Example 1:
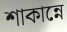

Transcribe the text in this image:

শাকান্নে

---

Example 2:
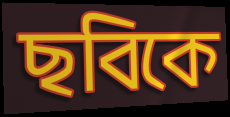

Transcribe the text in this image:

ছবিকে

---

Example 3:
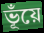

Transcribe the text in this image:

ভূঁয়ে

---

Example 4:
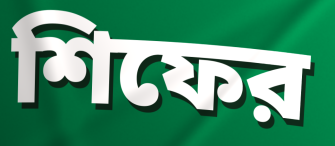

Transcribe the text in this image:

শিফের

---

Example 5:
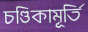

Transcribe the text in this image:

চণ্ডিকামূর্তি